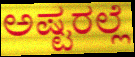
ಅಷ್ಟರಲ್ಲೆ